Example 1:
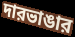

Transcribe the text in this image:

দারভাঙার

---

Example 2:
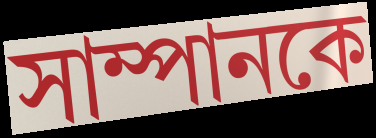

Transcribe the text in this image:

সাম্পানকে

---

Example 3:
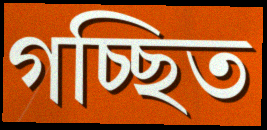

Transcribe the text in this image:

গচ্ছিত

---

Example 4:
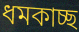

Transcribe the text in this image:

ধমকাচ্ছ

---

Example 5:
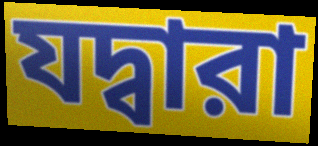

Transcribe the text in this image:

যদ্বারা